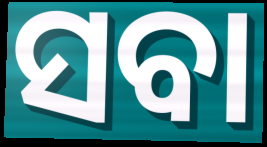
ସବା